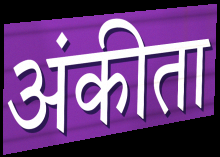
अंकीता